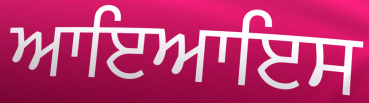
ਆਇਆਇਸ